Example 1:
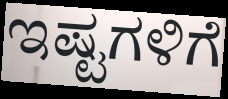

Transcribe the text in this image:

ಇಷ್ಟಗಳಿಗೆ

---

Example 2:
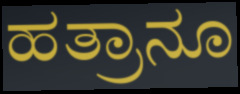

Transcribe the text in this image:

ಹತ್ರಾನೂ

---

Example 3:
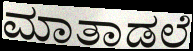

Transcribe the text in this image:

ಮಾತಾಡಲೆ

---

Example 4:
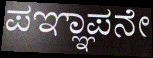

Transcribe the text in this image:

ಪಞ್ಞಾಪನೇ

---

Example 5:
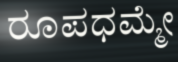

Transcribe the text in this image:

ರೂಪಧಮ್ಮೇ